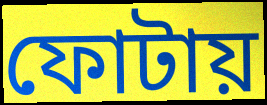
ফোটায়